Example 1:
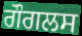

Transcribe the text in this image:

ਗੌਗਲਸ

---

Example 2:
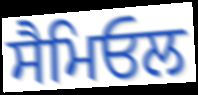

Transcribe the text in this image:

ਸੈਮਿਓਲ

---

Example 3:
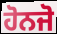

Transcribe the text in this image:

ਹੋਨਜੋ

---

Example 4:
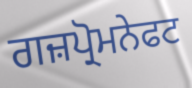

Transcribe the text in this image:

ਗਜ਼ਪ੍ਰੋਮਨੇਫਟ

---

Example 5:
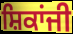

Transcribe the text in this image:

ਸ਼ਿਕਾਂਜੀ